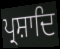
ਪ੍ਰਸ਼ਾਦਿ